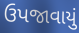
ઉપજાવાયું